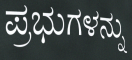
ಪ್ರಭುಗಳನ್ನು